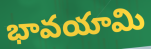
భావయామి